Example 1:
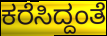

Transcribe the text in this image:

ಕರೆಸಿದ್ದಂತೆ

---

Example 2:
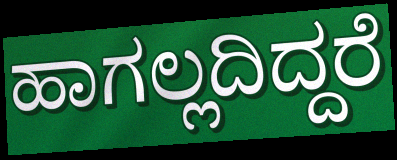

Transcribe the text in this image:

ಹಾಗಲ್ಲದಿದ್ದರೆ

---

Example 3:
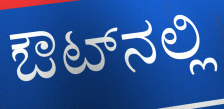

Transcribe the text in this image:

ಔಟ್‌ನಲ್ಲಿ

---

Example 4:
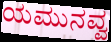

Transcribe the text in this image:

ಯಮುನವ್ವ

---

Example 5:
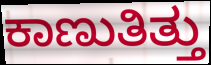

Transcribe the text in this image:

ಕಾಣುತಿತ್ತು